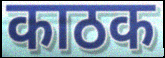
काठक